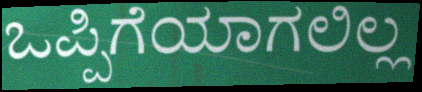
ಒಪ್ಪಿಗೆಯಾಗಲಿಲ್ಲ